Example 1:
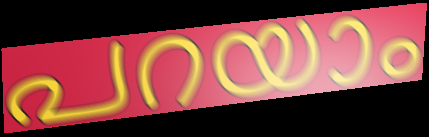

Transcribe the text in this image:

പറയാം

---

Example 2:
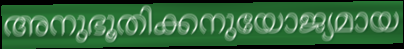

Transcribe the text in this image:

അനുഭൂതിക്കനുയോജ്യമായ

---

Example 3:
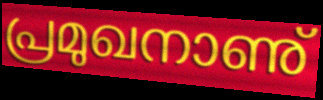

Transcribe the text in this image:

പ്രമുഖനാണു്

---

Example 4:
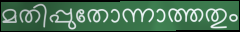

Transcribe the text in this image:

മതിപ്പുതോന്നാത്തതും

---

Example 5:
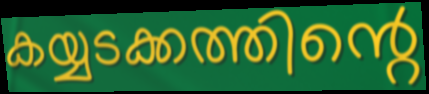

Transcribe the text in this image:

കയ്യടക്കത്തിന്റെ